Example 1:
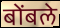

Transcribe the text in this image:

बोंबले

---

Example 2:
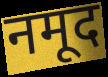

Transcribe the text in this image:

नमूद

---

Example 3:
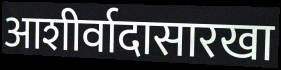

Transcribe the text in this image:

आशीर्वादासारखा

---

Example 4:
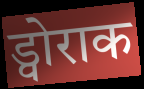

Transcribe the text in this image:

ड्वोराक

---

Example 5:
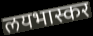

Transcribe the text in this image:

लयभास्कर